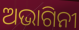
ଅଭାଗିନୀ